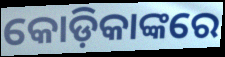
କୋଡ଼ିକାଙ୍କରେ